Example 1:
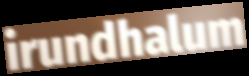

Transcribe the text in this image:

irundhalum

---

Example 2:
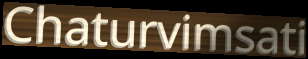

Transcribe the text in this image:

Chaturvimsati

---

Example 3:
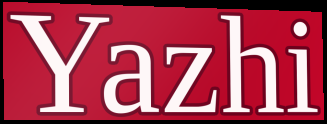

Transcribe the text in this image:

Yazhi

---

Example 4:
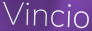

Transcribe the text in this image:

Vincio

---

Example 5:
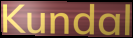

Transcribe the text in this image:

Kundal